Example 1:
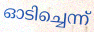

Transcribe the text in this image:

ഓടിച്ചെന്ന്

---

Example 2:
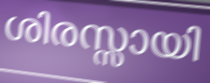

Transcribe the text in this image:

ശിരസ്സായി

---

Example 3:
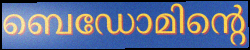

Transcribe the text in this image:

ബെഡോമിന്റെ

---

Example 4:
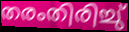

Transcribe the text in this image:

തരംതിരിച്ചു്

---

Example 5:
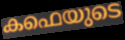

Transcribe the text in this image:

കഫെയുടെ